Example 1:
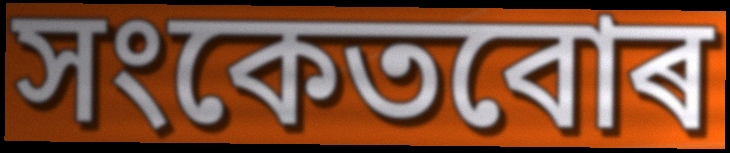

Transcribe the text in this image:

সংকেতবোৰ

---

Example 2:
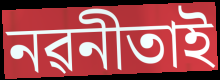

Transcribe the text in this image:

নৱনীতাই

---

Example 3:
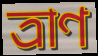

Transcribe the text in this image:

ত্ৰাণ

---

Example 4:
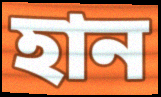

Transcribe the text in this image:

হান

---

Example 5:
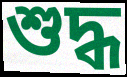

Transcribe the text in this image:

শুদ্ধ